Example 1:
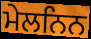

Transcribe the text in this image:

ਮੇਲਨਿਨ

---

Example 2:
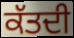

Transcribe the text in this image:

ਕੱਤਦੀ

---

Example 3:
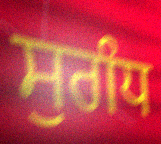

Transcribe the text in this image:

ਸੁਗੰਧ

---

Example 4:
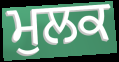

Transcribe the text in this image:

ਮੁਲਕ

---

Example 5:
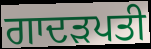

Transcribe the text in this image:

ਗਾਦੜਪਤੀ